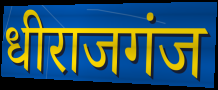
धीराजगंज